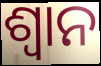
ଶ୍ୱାନ